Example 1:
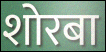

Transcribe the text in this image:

शोरबा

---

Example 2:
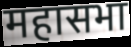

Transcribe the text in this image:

महासभा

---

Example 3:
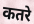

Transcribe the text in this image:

कतरे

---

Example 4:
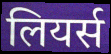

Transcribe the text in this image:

लियर्स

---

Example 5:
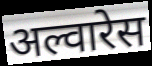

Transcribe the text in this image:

अल्वारेस